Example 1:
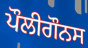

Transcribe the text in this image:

ਪੌਲੀਗੌਨਸ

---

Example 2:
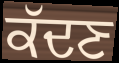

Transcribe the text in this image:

ਕੱਦਣ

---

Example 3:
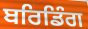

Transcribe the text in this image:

ਬਰਿਡਿੰਗ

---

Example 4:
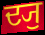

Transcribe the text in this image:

ਦ੍ਯੁ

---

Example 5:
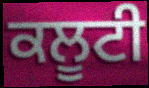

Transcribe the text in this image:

ਕਲੂਟੀ